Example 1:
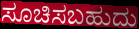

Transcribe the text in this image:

ಸೂಚಿಸಬಹುದು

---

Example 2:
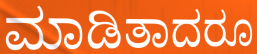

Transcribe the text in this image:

ಮಾಡಿತಾದರೂ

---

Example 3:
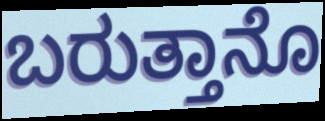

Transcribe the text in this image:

ಬರುತ್ತಾನೊ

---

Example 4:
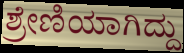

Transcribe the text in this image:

ಶ್ರೇಣಿಯಾಗಿದ್ದು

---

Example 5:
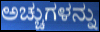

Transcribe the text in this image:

ಅಚ್ಚುಗಳನ್ನು